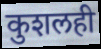
कुशलही